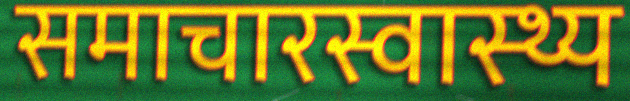
समाचारस्वास्थ्य